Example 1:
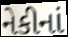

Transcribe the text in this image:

નેકીનાં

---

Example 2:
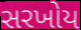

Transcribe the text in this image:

સરખોય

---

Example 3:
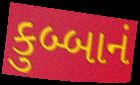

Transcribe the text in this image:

કુબ્બાનં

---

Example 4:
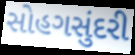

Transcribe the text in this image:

સોહગસુંદરી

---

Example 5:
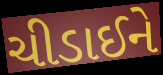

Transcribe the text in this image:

ચીડાઈને